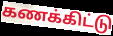
கணக்கிட்டு